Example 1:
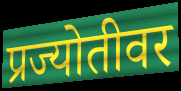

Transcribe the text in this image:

प्रज्योतीवर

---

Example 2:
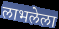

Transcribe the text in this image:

लाभलेला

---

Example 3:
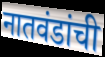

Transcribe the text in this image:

नातवंडांची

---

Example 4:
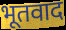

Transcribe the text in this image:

भूतवाद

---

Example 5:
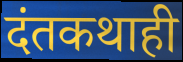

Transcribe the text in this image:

दंतकथाही